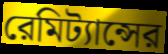
রেমিট্যান্সের